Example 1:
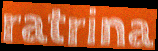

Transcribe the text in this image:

ratrina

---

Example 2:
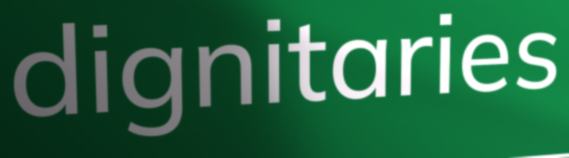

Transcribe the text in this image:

dignitaries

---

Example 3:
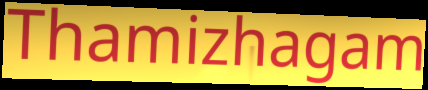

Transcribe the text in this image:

Thamizhagam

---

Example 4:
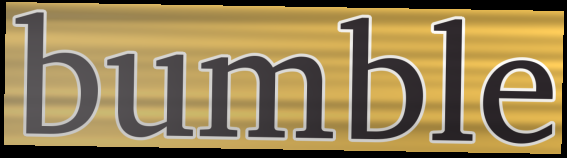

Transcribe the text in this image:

bumble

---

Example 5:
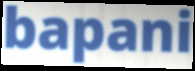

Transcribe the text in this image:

bapani